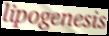
lipogenesis